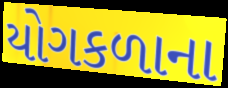
યોગકળાના